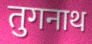
तुगनाथ